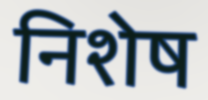
निशेष